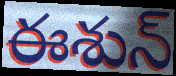
ఈశున్